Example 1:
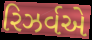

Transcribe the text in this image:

રિઝર્વએ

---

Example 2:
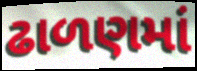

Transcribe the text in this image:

ઢાળણમાં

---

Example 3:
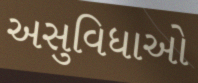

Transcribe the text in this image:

અસુવિધાઓ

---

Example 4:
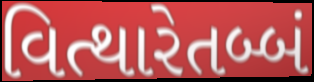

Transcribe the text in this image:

વિત્થારેતબ્બં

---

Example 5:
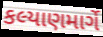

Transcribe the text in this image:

કલ્યાણમાર્ગે